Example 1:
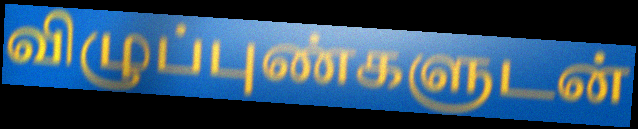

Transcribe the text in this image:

விழுப்புண்களுடன்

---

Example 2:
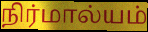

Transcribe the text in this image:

நிர்மால்யம்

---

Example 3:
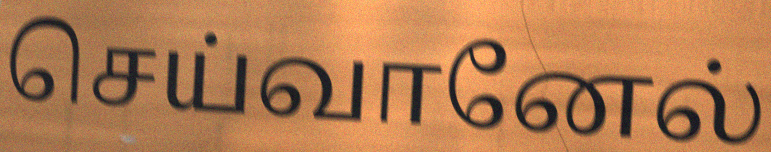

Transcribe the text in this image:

செய்வானேல்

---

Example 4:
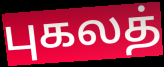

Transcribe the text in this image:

புகலத்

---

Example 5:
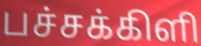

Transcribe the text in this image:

பச்சக்கிளி